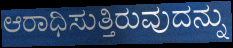
ಆರಾಧಿಸುತ್ತಿರುವುದನ್ನು